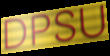
DPSU